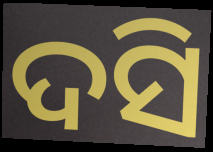
ଦସି